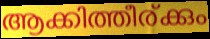
ആക്കിത്തീര്ക്കും